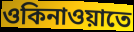
ওকিনাওয়াতে